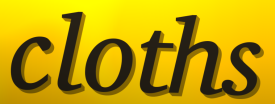
cloths